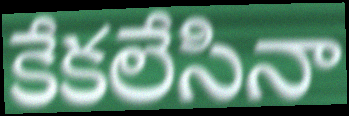
కేకలేసినా